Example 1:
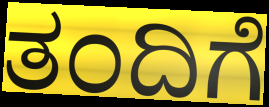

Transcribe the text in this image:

ತಂದಿಗೆ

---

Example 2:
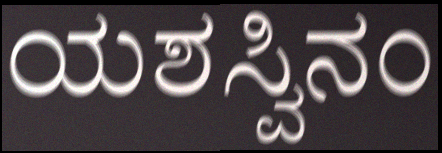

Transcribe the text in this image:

ಯಶಸ್ವಿನಂ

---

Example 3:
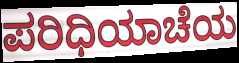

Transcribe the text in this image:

ಪರಿಧಿಯಾಚೆಯ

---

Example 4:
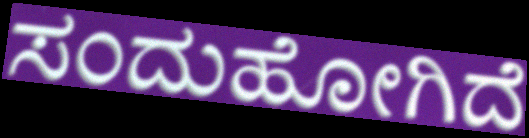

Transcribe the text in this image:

ಸಂದುಹೋಗಿದೆ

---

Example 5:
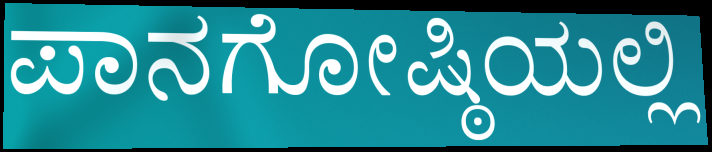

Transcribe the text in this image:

ಪಾನಗೋಷ್ಠಿಯಲ್ಲಿ